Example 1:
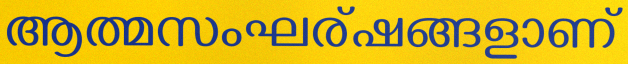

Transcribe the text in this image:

ആത്മസംഘര്ഷങ്ങളാണ്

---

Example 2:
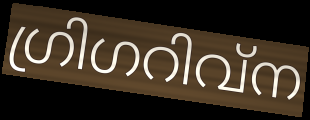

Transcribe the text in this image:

ഗ്രിഗറിവ്ന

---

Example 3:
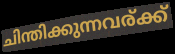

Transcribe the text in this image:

ചിന്തിക്കുന്നവര്ക്ക്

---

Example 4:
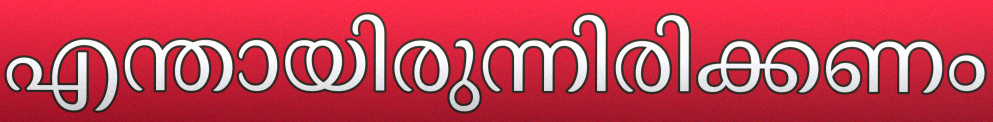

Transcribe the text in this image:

എന്തായിരുന്നിരിക്കണം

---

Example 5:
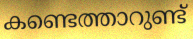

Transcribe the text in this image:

കണ്ടെത്താറുണ്ട്